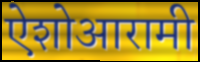
ऐशोआरामी